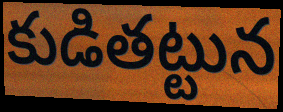
కుడితట్టున